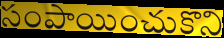
సంపాయించుకొని